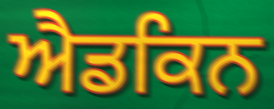
ਐਡਕਿਨ